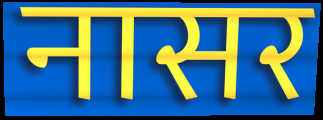
नासर